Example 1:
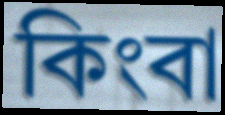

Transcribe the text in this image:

কিংবা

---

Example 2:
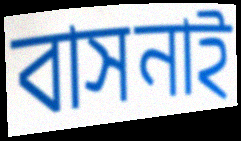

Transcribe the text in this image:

বাসনাই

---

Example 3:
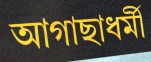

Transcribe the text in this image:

আগাছাধর্মী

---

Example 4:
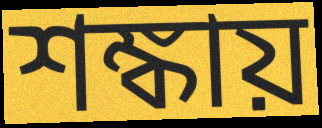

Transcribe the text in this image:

শঙ্কায়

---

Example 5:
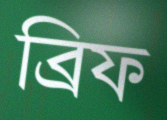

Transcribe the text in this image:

ব্রিফ